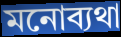
মনোব্যথা